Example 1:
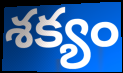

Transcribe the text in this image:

శక్యం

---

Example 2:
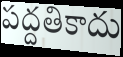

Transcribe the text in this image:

పద్దతికాదు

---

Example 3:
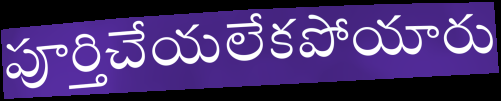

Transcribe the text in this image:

పూర్తిచేయలేకపోయారు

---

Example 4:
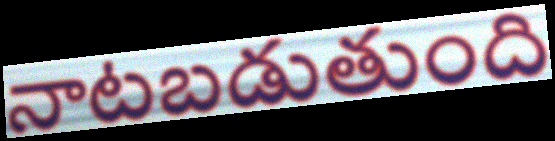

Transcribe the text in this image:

నాటబడుతుంది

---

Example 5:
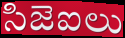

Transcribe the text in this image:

సిజెఐలు